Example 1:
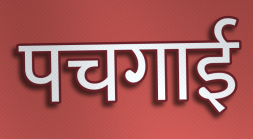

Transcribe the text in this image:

पचगाई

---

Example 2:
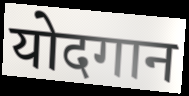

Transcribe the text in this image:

योदगान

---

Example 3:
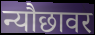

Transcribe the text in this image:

न्यौछावर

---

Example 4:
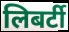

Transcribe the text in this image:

लिबर्टी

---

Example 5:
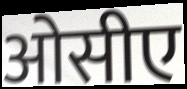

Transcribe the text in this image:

ओसीए